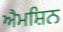
ਐਮਸ਼ਿਨ